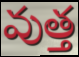
వుత్త